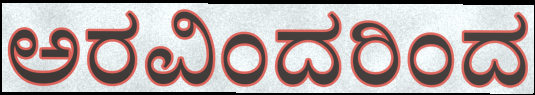
ಅರವಿಂದರಿಂದ